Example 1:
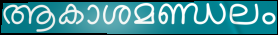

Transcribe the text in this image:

ആകാശമണ്ഡലം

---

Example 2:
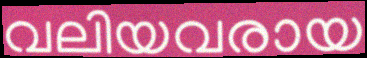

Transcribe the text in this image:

വലിയവരായ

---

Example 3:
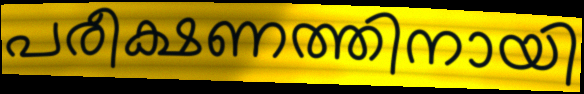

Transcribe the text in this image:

പരീക്ഷണത്തിനായി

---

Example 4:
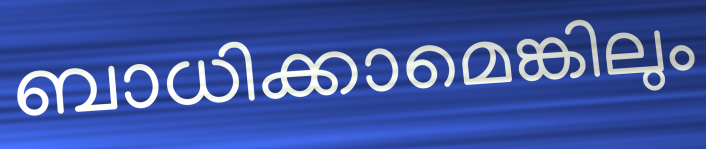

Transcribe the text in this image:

ബാധിക്കാമെങ്കിലും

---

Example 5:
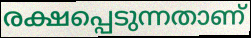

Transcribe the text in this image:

രക്ഷപ്പെടുന്നതാണ്